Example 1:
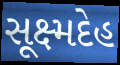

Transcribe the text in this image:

સૂક્ષ્મદેહ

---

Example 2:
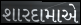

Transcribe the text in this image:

શારદામાએ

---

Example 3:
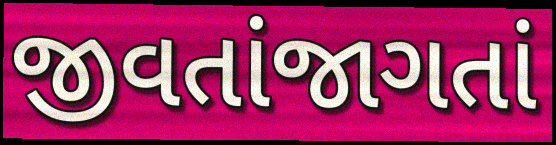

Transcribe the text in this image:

જીવતાંજાગતાં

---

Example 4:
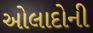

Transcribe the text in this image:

ઓલાદોની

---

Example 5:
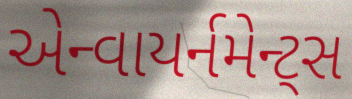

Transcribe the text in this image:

એન્વાયર્નમેન્ટ્સ